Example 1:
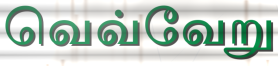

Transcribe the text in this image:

வெவ்வேறு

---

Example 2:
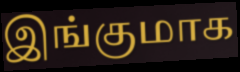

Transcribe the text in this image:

இங்குமாக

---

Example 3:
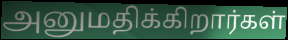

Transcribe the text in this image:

அனுமதிக்கிறார்கள்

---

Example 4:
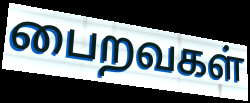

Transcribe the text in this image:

பைறவகள்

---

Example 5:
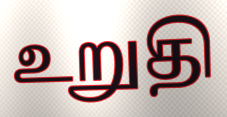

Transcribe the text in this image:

உறுதி